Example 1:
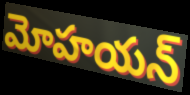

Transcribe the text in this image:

మోహయన్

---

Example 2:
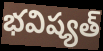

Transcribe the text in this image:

భవిష్యత్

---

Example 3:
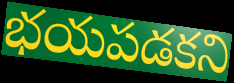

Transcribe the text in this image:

భయపడకని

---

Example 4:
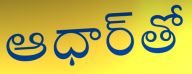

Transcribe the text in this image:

ఆధార్‌తో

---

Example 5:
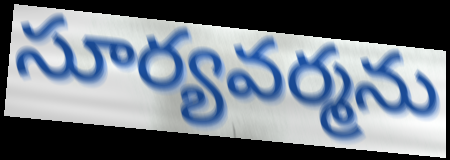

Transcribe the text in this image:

సూర్యవర్మను